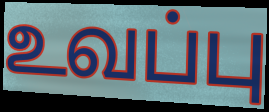
உவப்பு